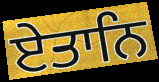
ਏਤਾਨਿ